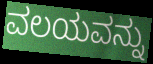
ವಲಯವನ್ನು